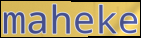
maheke